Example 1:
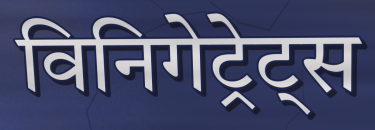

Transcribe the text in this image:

विनिगेट्रेट्स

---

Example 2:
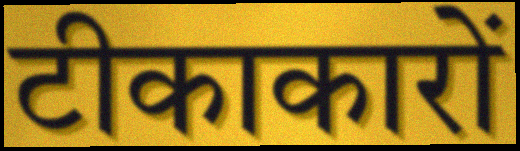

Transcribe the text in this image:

टीकाकारों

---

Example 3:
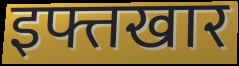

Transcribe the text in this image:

इफ्तखार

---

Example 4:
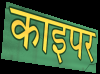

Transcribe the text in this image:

काइपर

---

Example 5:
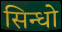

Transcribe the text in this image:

सिन्धो